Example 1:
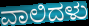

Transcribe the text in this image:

ವಾಲಿದಳು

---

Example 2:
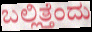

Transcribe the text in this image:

ಬಲ್ಲಿತ್ತೆಂದು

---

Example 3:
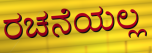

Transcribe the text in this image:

ರಚನೆಯಲ್ಲ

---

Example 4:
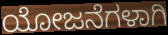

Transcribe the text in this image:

ಯೋಜನೆಗಳಾಗಿ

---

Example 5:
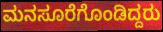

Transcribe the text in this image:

ಮನಸೂರೆಗೊಂಡಿದ್ದರು